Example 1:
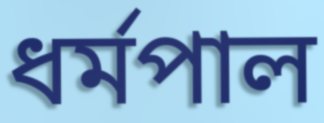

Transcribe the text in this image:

ধর্মপাল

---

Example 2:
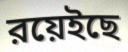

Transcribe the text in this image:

রয়েইছে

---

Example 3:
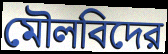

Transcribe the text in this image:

মৌলবিদের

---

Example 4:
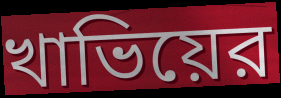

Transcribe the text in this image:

খাভিয়ের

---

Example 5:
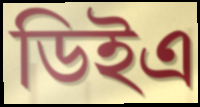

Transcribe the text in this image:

ডিইএ